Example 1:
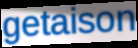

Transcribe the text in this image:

getaison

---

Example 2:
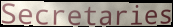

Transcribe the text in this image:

Secretaries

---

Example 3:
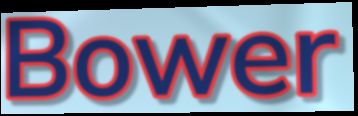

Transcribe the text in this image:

Bower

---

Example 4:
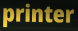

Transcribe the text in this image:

printer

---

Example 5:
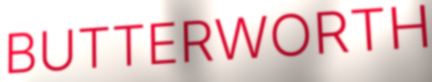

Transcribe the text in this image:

BUTTERWORTH